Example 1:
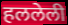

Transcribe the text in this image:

हललेली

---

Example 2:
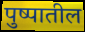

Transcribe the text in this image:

पुष्पातील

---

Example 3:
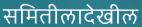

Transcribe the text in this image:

समितीलादेखील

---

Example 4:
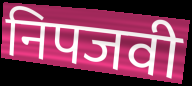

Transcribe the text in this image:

निपजवी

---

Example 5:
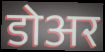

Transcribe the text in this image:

डोअर